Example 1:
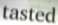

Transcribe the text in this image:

tasted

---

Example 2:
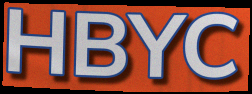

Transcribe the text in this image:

HBYC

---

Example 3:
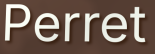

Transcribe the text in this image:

Perret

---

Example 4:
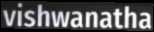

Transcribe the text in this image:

vishwanatha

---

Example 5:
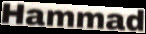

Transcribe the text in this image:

Hammad